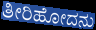
ತೀರಿಹೋದನು